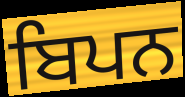
ਬਿਪਨ